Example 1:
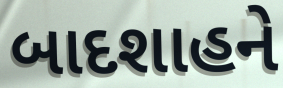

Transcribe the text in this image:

બાદશાહને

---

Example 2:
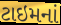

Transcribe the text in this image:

ટાઇમનાં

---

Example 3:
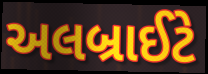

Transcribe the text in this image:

અલબ્રાઈટે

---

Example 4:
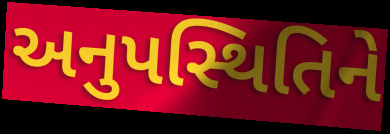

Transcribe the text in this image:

અનુપસ્થિતિને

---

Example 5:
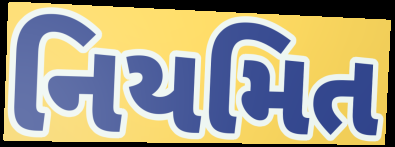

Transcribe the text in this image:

નિયમિત